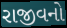
રાજીવનો